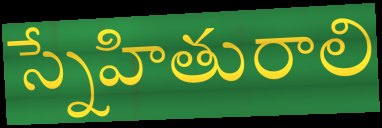
స్నేహితురాలి